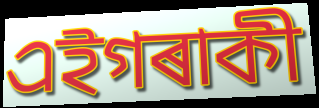
এইগৰাকী